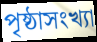
পৃষ্ঠাসংখ্যা